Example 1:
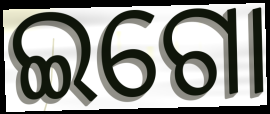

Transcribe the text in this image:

ଇଗୋ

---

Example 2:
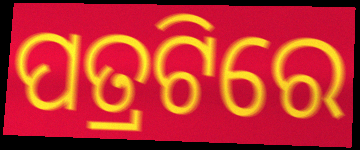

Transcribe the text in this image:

ପତ୍ରଟିରେ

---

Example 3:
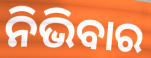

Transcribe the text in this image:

ନିଭିବାର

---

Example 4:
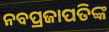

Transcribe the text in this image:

ନବପ୍ରଜାପତିଙ୍କ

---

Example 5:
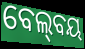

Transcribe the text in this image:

ବେଲ୍‍ବୟ